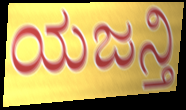
ಯಜನ್ತಿ